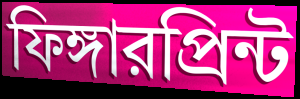
ফিঙ্গারপ্রিন্ট